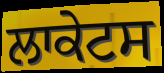
ਲਾਕੇਟਸ